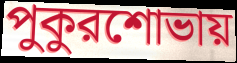
পুকুরশোভায়